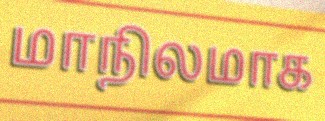
மாநிலமாக